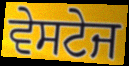
ਵੇਸਟੇਜ